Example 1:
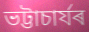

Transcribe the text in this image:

ভট্টাচাৰ্যৰ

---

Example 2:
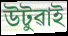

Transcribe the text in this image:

উটুৱাই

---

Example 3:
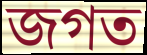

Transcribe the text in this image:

জগত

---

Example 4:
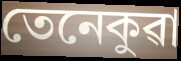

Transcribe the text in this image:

তেনেকুৱা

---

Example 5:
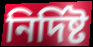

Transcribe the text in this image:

নিৰ্দিষ্ট